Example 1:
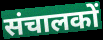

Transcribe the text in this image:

संचालकों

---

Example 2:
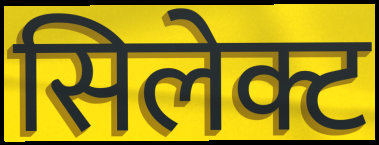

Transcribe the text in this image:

सिलेक्ट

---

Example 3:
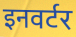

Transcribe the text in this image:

इनवर्टर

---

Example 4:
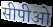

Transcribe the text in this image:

सीपीओ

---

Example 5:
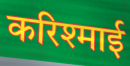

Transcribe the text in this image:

करिश्माई